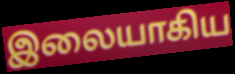
இலையாகிய